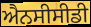
ਐਨਸੀਸੀਡੀ